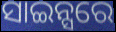
ସାଇନ୍ସରେ